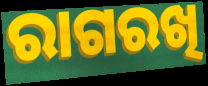
ରାଗରଖି